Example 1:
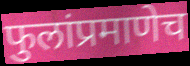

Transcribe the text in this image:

फुलांप्रमाणेच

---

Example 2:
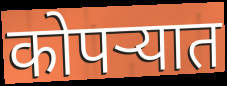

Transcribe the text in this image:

कोपऱ्यात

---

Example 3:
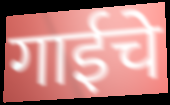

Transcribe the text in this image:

गाईचे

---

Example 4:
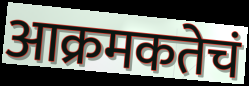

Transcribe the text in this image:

आक्रमकतेचं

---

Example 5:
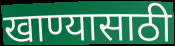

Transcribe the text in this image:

खाण्यासाठी